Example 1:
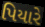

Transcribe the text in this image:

પિયારે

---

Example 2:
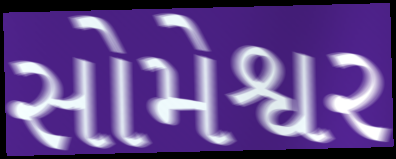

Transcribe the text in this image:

સોમેશ્વર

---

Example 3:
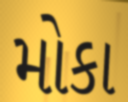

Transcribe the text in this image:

મોકા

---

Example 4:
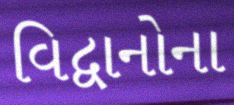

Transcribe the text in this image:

વિદ્વાનોના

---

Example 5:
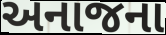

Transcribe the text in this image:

અનાજના